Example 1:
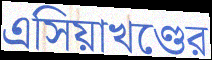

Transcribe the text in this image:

এসিয়াখণ্ডের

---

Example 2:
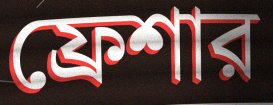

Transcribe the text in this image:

ফ্রেশার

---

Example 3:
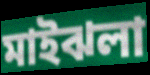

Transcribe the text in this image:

মাইঝলা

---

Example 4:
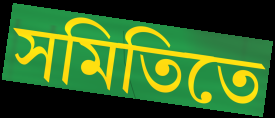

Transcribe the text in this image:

সমিতিতে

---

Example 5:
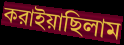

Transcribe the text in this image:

করাইয়াছিলাম